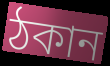
ঠকান